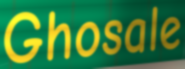
Ghosale